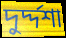
দুর্দ্দশা